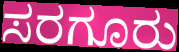
ಸರಗೂರು